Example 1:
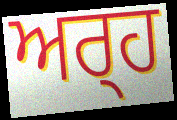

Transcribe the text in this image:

ਅਰ੍‍ਹ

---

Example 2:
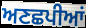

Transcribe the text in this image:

ਅਣਛਪੀਆਂ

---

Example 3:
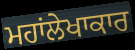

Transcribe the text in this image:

ਮਹਾਂਲੇਖਾਕਾਰ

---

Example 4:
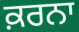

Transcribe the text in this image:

ਕ਼ਰਨਾ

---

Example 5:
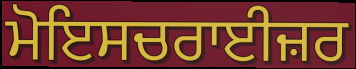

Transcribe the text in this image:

ਮੋਇਸਚਰਾਈਜ਼ਰ